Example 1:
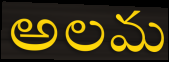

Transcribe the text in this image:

అలమ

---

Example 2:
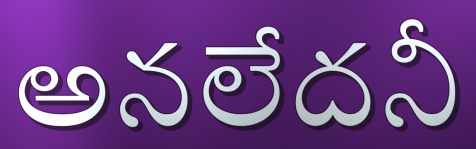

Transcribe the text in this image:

అనలేదనీ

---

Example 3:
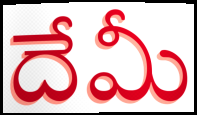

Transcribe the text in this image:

దేమీ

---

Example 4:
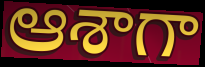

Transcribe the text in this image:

ఆశాగా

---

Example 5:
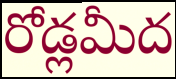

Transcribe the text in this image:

రోడ్లమీద